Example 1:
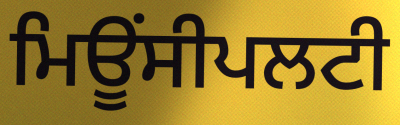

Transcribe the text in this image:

ਮਿਊਂਸੀਪਲਟੀ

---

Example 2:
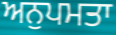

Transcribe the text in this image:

ਅਨੁਪਮਤਾ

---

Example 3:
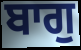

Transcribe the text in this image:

ਬਾਗੁ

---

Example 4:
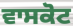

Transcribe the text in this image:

ਵਾਸਕੋਟ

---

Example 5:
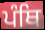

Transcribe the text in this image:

ਪੰਥਿ